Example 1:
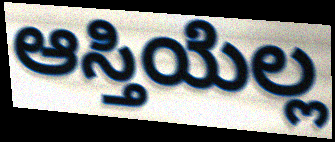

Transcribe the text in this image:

ಆಸ್ತಿಯೆಲ್ಲ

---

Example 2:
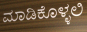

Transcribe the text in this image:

ಮಾಡಿಕೊಳ್ಳಲಿ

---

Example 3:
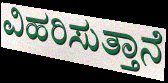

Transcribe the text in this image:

ವಿಹರಿಸುತ್ತಾನೆ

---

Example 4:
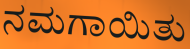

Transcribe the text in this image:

ನಮಗಾಯಿತು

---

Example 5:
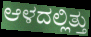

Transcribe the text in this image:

ಆಳದಲ್ಲಿತ್ತು